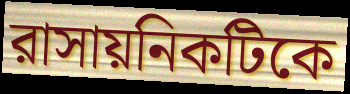
রাসায়নিকটিকে